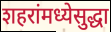
शहरांमध्येसुद्धा